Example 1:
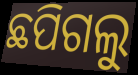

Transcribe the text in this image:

ଛପିଗଲୁ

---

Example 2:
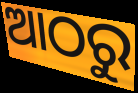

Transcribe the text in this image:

ଆଠରୁ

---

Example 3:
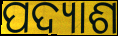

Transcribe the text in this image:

ପଦ୍ୟାଶ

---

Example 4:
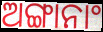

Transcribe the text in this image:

ଅଙ୍ଗାନାଂ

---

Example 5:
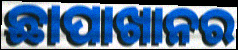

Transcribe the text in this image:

ଛାପାଖାନର